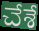
చేశే